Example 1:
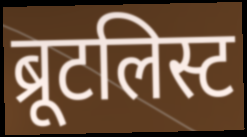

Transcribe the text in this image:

ब्रूटलिस्ट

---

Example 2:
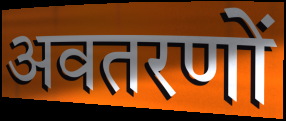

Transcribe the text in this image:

अवतरणों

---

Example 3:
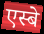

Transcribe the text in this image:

एस्बे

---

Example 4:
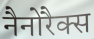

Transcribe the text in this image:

नैनोरैक्स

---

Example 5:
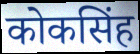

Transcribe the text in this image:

कोकसिंह